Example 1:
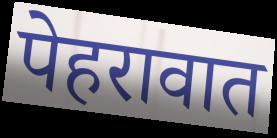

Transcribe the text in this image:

पेहरावात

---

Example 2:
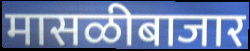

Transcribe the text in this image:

मासळीबाजार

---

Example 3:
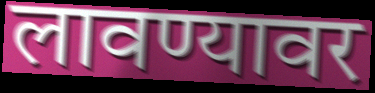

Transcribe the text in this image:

लावण्यावर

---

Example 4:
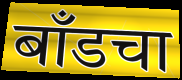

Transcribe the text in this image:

बाँडचा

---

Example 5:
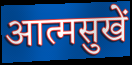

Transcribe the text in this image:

आत्मसुखें